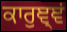
ਕਾਰੁਞ੍ਞਂ